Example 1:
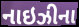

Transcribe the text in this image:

નાઇઝીના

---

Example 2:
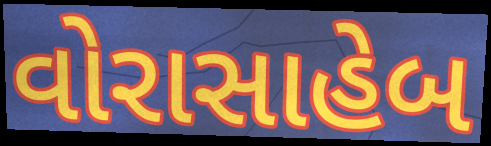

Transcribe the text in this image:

વોરાસાહેબ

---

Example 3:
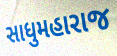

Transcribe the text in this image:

સાધુમહારાજ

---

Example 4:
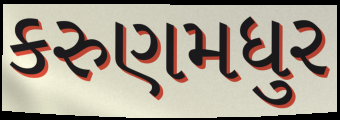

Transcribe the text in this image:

કરુણમધુર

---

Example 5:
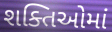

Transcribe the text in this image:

શક્તિઓમાં